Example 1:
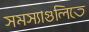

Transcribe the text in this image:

সমস্যাগুলিতে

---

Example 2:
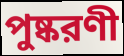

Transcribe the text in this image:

পুষ্করণী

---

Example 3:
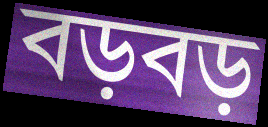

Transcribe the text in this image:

বড়বড়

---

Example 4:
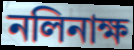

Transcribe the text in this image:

নলিনাক্ষ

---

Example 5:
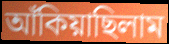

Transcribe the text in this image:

আঁকিয়াছিলাম